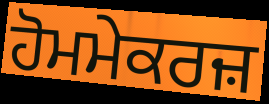
ਹੋਮਮੇਕਰਜ਼